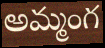
అమ్మంగ